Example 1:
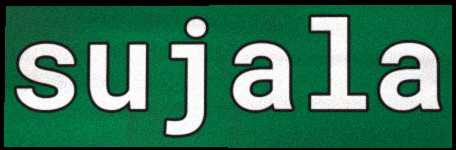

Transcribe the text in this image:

sujala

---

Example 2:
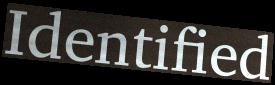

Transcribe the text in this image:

Identified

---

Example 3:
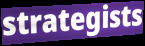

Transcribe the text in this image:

strategists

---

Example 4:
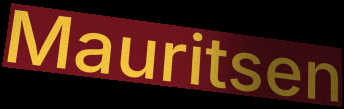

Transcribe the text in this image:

Mauritsen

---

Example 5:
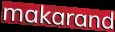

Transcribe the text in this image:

makarand